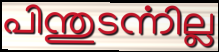
പിന്തുടൎന്നില്ല